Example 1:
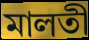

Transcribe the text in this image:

মালতী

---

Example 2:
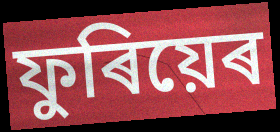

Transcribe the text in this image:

ফুৰিয়েৰ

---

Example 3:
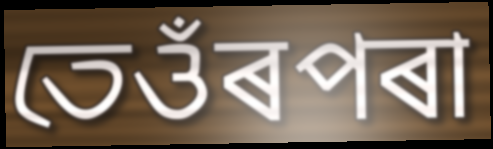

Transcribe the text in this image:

তেওঁৰপৰা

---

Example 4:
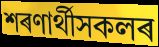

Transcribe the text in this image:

শৰণাৰ্থীসকলৰ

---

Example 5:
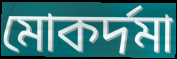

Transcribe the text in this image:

মোকৰ্দমা